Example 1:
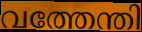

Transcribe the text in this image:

വത്തേന്തി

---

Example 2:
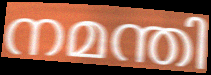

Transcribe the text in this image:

നമന്തി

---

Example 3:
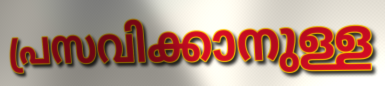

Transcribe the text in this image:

പ്രസവിക്കാനുള്ള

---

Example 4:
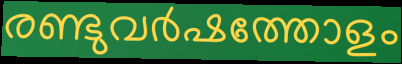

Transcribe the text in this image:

രണ്ടുവർഷത്തോളം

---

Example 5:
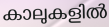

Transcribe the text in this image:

കാലുകളിൽ